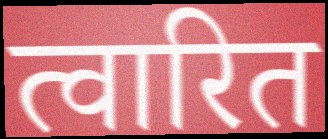
त्वारित